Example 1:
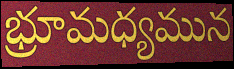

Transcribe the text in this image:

భ్రూమధ్యమున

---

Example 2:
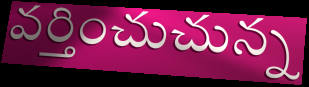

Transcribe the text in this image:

వర్తించుచున్న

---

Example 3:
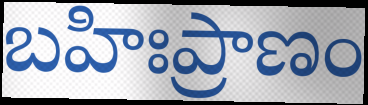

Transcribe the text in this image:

బహిఃప్రాణం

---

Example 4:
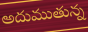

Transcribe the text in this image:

అదుముతున్న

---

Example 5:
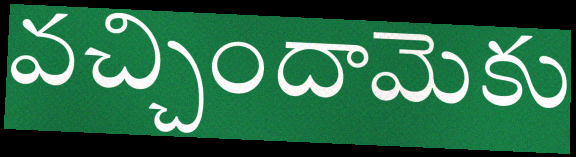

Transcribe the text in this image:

వచ్చిందామెకు